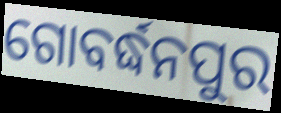
ଗୋବର୍ଦ୍ଧନପୁର